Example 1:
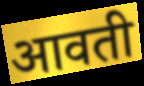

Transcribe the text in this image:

आवती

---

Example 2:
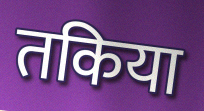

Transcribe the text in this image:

तकिया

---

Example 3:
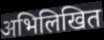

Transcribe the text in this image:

अभिलिखित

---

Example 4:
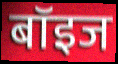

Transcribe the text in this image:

बॉइज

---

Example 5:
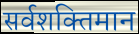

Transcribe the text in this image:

सर्वशक्‍तिमान